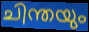
ചിന്തയും